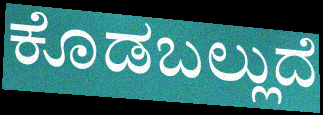
ಕೊಡಬಲ್ಲುದೆ